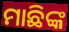
ମାଛିଙ୍କ